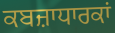
ਕਬਜ਼ਾਧਾਰਕਾਂ